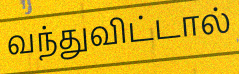
வந்துவிட்டால்